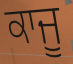
ਕਾਜੂ